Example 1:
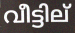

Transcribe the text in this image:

വീട്ടില്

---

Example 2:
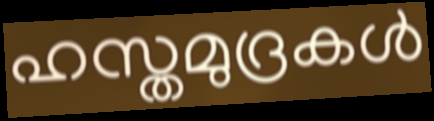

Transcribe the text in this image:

ഹസ്തമുദ്രകൾ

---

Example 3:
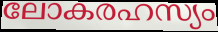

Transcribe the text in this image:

ലോകരഹസ്യം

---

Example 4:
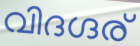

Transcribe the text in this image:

വിദഗ്ദര്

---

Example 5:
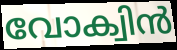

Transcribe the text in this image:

വോക്വിൻ